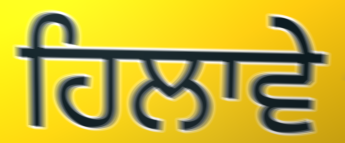
ਹਿਲਾਵੇ